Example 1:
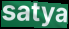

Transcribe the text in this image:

satya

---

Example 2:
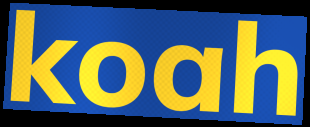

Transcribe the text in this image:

koah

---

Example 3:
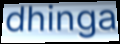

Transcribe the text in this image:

dhinga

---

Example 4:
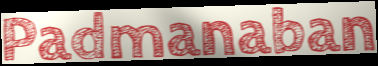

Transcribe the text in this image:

Padmanaban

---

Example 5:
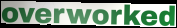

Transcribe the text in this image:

overworked